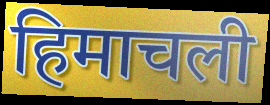
हिमाचली